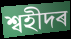
শ্বহীদৰ